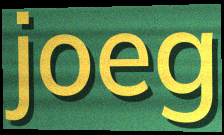
joeg